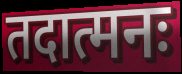
तदात्मनः